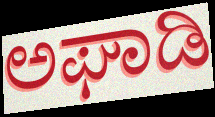
ಅಘಾಡಿ